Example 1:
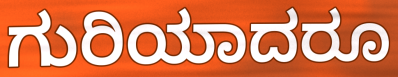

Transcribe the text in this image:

ಗುರಿಯಾದರೂ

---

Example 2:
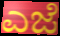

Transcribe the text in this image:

ಎಜೆ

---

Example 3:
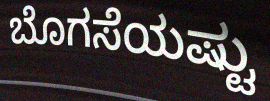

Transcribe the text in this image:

ಬೊಗಸೆಯಷ್ಟು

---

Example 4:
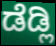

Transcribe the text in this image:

ಡೆಡ್ಲಿ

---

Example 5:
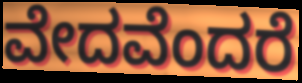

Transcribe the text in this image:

ವೇದವೆಂದರೆ